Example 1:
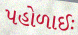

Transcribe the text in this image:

પહોળાઈઃ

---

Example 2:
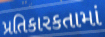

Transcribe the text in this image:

પ્રતિકારકતામાં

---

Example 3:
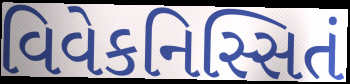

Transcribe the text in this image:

વિવેકનિસ્સિતં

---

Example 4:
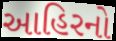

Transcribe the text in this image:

આહિરનો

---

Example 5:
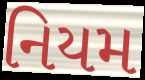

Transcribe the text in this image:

નિયમ